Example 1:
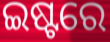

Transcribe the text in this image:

ଇଷ୍ଟରେ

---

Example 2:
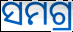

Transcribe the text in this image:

ସମଗ୍ର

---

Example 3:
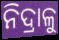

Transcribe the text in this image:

ନିଦ୍ରାଳୁ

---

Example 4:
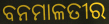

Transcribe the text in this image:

ବନମାଳତୀର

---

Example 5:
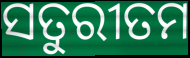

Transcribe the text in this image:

ସତୁରୀତମ